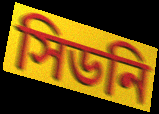
সিডনি